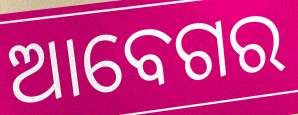
ଆବେଗର